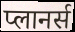
प्लानर्स